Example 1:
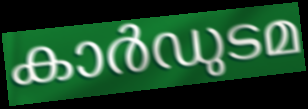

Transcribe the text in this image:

കാർഡുടമ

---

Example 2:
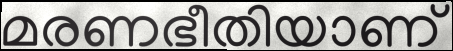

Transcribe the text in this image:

മരണഭീതിയാണ്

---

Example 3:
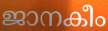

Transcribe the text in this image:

ജാനകീം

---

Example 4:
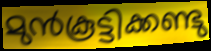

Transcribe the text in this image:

മുൻകൂട്ടിക്കണ്ടു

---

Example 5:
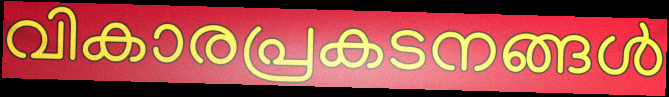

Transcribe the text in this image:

വികാരപ്രകടനങ്ങൾ